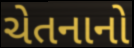
ચેતનાનો